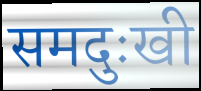
समदुःखी